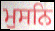
ਮੁਸਨਿ